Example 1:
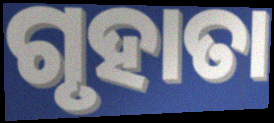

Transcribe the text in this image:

ଗୃହାତା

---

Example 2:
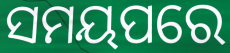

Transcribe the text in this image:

ସମୟପରେ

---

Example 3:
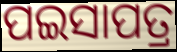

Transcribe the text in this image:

ପଇସାପତ୍ର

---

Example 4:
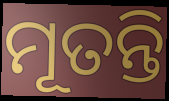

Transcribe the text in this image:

ମୂତନ୍ତି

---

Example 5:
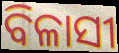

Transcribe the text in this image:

ବିଳାସୀ